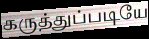
கருத்துப்படியே